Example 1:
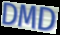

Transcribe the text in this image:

DMD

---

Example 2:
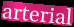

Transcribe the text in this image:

arterial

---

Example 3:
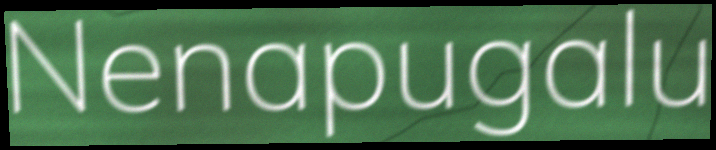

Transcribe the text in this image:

Nenapugalu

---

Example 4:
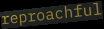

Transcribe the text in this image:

reproachful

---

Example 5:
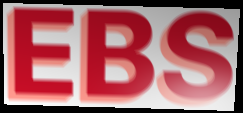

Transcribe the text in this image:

EBS